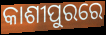
କାଶୀପୁରରେ